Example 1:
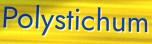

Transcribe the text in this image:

Polystichum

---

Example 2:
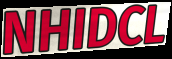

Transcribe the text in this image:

NHIDCL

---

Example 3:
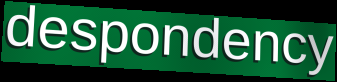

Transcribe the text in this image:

despondency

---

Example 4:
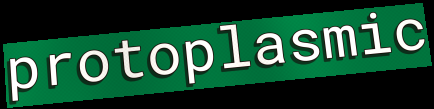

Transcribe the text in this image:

protoplasmic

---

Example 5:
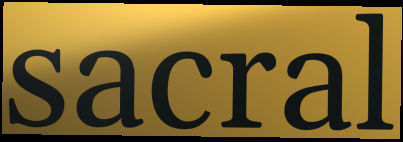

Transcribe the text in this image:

sacral